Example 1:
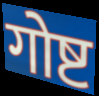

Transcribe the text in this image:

गोष्ट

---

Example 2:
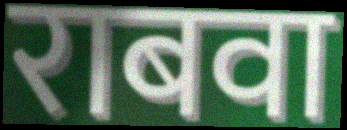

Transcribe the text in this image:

राबवा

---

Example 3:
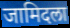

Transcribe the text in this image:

जामिदला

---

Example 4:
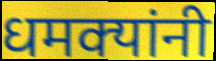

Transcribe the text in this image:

धमक्यांनी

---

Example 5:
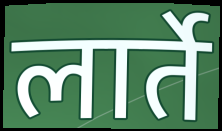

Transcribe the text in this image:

लार्ते